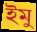
ইমু